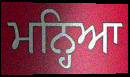
ਮਨ੍ਹਿਆ